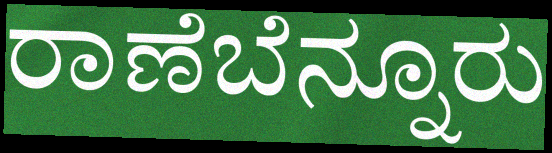
ರಾಣೆಬೆನ್ನೂರು